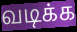
வடிக்க